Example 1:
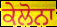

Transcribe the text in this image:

ਕੇਲੋਨਾ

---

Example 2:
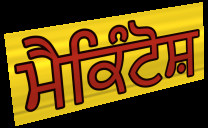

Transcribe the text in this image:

ਮੈਕਿੰਟੋਸ਼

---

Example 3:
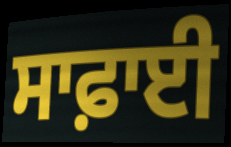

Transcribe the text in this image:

ਸਾਫ਼ਾਈ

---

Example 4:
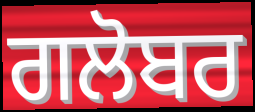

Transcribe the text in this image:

ਗਲੋਬਰ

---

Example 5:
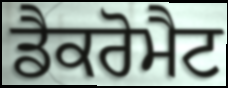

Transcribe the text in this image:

ਡੈਕਰੋਮੈਟ